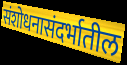
संशोधनासंदर्भातील